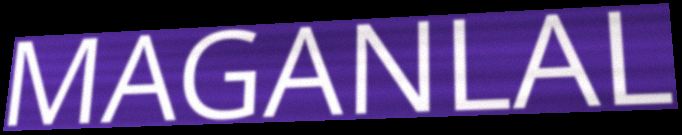
MAGANLAL